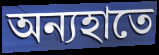
অন্যহাতে